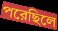
পরেছিলে